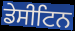
ਡੇਸੀਟਿਨ